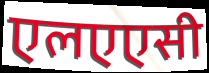
एलएएसी